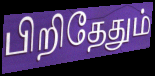
பிறிதேதும்